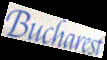
Bucharest